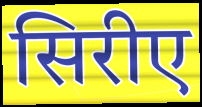
सिरीए